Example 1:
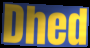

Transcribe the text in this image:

Dhed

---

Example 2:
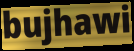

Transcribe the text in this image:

bujhawi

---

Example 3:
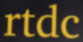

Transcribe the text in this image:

rtdc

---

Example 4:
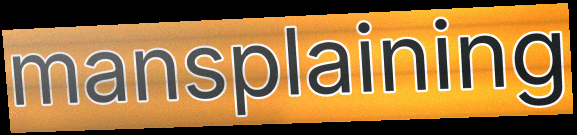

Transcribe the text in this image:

mansplaining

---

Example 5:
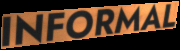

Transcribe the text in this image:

INFORMAL